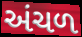
અંચળ